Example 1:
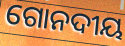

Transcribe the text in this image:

ଗୋନଦୀୟ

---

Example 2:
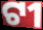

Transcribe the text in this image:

ଟୀ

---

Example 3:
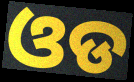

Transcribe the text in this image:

ଓଡ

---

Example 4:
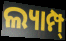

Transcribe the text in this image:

ଲ୍ୟାମ୍ପ୍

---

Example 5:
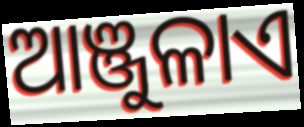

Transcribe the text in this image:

ଆଞ୍ଜୁଳାଏ